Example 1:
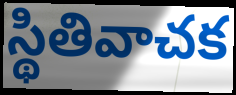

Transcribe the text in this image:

స్థితివాచక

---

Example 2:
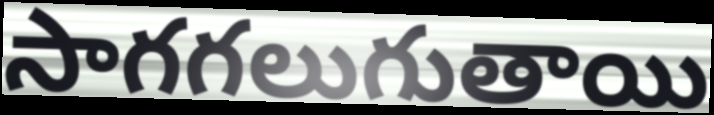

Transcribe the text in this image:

సాగగలుగుతాయి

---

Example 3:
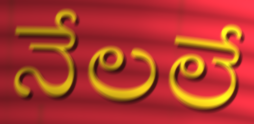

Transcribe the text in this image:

నేలలే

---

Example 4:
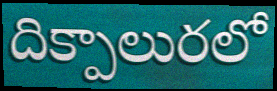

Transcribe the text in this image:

దిక్పాలురలో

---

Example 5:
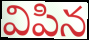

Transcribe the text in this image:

విపిన